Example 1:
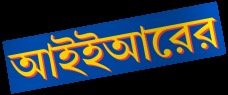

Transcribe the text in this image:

আইইআরের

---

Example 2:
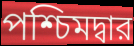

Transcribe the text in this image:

পশ্চিমদ্বার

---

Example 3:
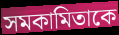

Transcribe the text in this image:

সমকামিতাকে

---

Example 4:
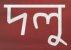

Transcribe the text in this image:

দলু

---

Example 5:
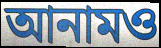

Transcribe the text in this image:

আনামও